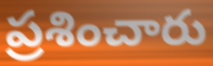
ప్రశించారు